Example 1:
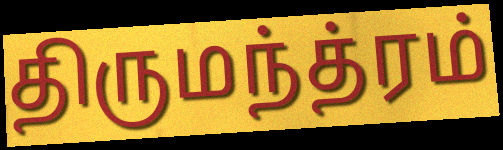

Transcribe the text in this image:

திருமந்த்ரம்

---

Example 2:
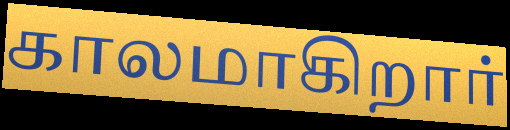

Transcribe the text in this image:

காலமாகிறார்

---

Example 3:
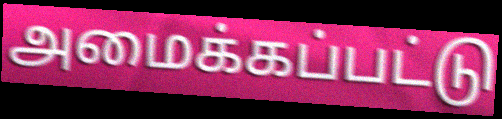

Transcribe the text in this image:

அமைக்கப்பட்டு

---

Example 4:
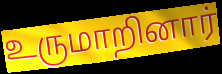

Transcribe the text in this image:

உருமாறினார்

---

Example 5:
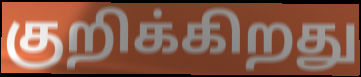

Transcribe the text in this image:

குறிக்கிறது